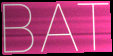
BAT